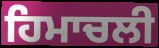
ਹਿਮਾਚਲੀ